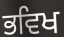
ਭਵਿਖ